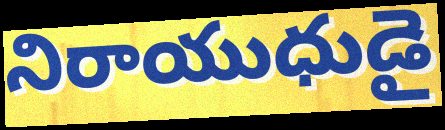
నిరాయుధుడై